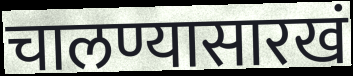
चालण्यासारखं